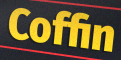
Coffin